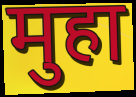
मुहा